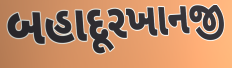
બહાદૂરખાનજી